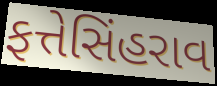
ફત્તેસિંહરાવ